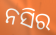
ନସିର